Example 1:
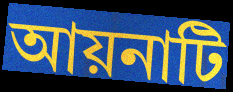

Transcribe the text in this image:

আয়নাটি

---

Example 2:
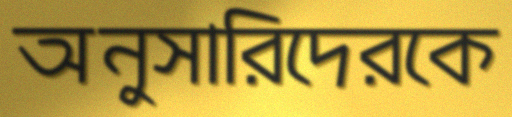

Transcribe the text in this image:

অনুসারিদেরকে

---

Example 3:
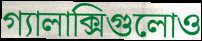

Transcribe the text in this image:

গ্যালাক্সিগুলোও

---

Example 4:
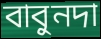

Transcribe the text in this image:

বাবুনদা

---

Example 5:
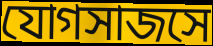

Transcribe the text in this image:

যোগসাজসে